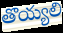
తొయ్యలి